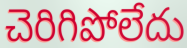
చెరిగిపోలేదు